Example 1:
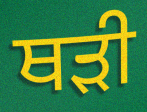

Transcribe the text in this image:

ਥੜੀ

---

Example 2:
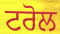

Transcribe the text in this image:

ਟਰੋਲ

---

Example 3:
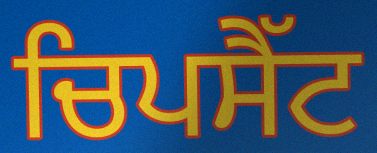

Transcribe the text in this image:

ਚਿਪਸੈੱਟ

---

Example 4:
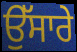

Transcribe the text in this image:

ਉੱਸਾਰੇ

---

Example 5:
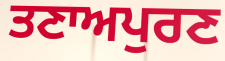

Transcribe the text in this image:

ਤਣਾਅਪੁਰਣ